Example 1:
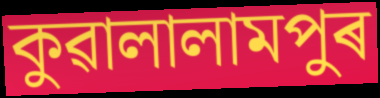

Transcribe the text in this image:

কুৱালালামপুৰ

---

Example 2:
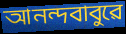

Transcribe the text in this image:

আনন্দবাবুৱে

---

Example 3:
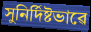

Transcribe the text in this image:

সুনিৰ্দিষ্টভাৱে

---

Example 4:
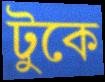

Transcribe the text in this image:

টুকে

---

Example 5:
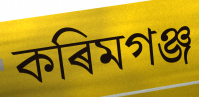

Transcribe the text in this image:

কৰিমগঞ্জ